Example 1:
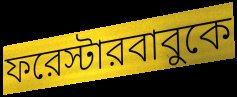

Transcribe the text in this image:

ফরেস্টারবাবুকে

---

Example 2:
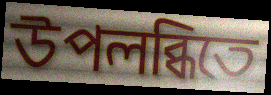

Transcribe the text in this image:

উপলব্ধিতে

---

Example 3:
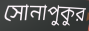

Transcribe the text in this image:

সোনাপুকুর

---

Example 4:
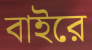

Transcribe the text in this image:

বাইরে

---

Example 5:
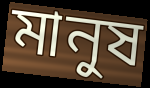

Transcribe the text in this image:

মানুষ